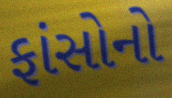
ફાંસોનો